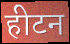
हीटन